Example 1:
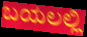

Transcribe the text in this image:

ಬಯಲಲ್ಲಿ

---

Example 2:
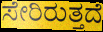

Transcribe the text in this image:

ಸೇರಿರುತ್ತದೆ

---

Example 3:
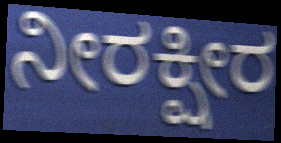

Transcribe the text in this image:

ನೀರಕ್ಷೀರ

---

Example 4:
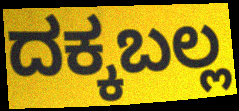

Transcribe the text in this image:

ದಕ್ಕಬಲ್ಲ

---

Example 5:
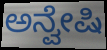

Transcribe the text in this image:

ಅನ್ವೇಷಿ